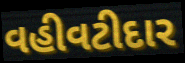
વહીવટીદાર